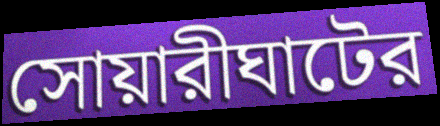
সোয়ারীঘাটের